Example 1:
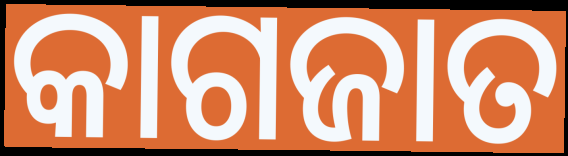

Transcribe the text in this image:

କାଗଜାତ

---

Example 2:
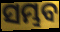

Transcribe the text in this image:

ସମ୍ଭବ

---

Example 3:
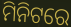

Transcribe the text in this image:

ମିନିଟରେ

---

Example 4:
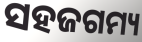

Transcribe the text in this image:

ସହଜଗମ୍ୟ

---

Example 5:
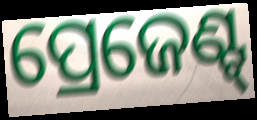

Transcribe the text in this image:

ପ୍ରେଜେଣ୍ଟ୍